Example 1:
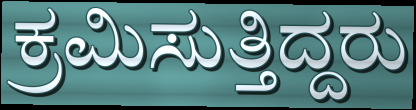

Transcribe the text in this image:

ಕ್ರಮಿಸುತ್ತಿದ್ದರು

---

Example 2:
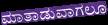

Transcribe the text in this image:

ಮಾತಾಡುವಾಗಲೂ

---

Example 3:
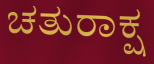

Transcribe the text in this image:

ಚತುರಾಕ್ಷ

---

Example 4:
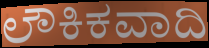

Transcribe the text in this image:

ಲೌಕಿಕವಾದಿ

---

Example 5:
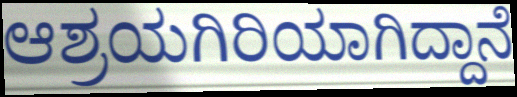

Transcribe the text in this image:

ಆಶ್ರಯಗಿರಿಯಾಗಿದ್ದಾನೆ